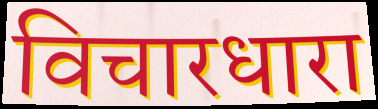
विचारधारा